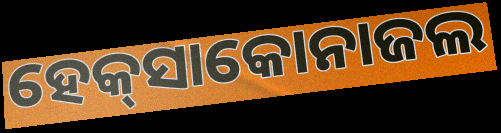
ହେକ୍‌ସାକୋନାଜଲ